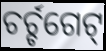
ଚର୍ଚ୍ଚଗେଟ୍